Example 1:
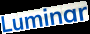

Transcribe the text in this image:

Luminar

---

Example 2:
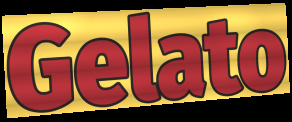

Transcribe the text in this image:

Gelato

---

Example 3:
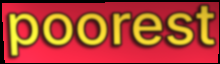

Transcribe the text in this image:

poorest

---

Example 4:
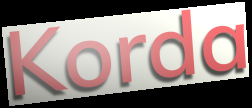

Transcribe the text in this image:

Korda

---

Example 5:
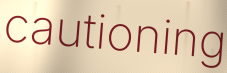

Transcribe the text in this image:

cautioning